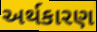
અર્થકારણ